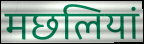
मछलियां